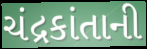
ચંદ્રકાંતાની